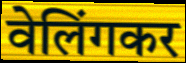
वेलिंगकर